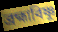
ব্রহ্মাবিষ্ণু